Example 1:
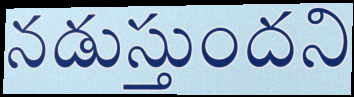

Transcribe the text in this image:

నడుస్తుందని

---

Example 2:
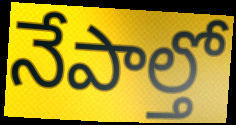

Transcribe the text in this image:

నేపాల్తో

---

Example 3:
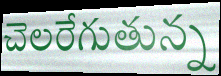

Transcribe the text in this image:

చెలరేగుతున్న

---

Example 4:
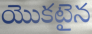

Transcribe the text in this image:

యొకటైన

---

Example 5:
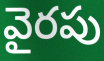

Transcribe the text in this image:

వైరపు